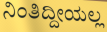
ನಿಂತಿದ್ದೀಯಲ್ಲ